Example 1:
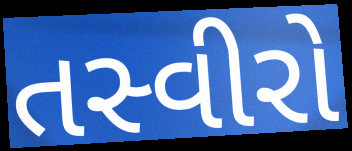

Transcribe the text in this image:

તસ્વીરો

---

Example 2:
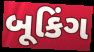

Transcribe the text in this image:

બૂકિંગ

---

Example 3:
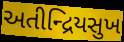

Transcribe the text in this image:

અતીન્દ્રિયસુખ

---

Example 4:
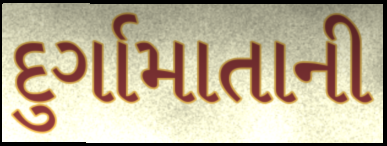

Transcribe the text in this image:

દુર્ગામાતાની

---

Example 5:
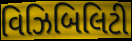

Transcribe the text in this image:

વિઝિબિલિટી